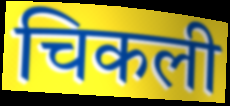
चिकली